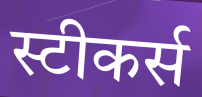
स्टीकर्स